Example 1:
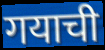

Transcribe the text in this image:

गयाची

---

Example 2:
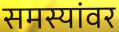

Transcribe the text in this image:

समस्यांवर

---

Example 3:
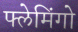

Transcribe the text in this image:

फ्लेमिंगो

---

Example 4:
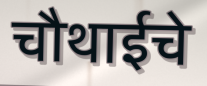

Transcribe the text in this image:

चौथाईचे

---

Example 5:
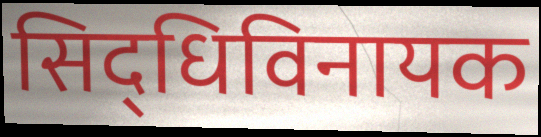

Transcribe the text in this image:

सिद्धिविनायक